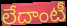
లేదాంటీ